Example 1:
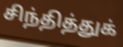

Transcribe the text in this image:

சிந்தித்துக்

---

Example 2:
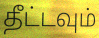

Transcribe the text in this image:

தீட்டவும்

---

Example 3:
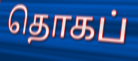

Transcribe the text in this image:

தொகப்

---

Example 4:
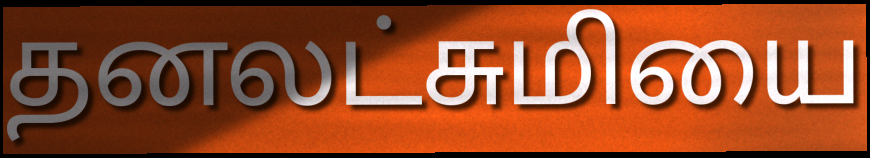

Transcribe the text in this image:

தனலட்சுமியை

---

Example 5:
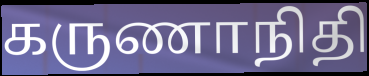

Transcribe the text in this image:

கருணாநிதி